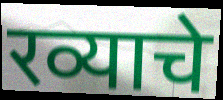
रव्याचे